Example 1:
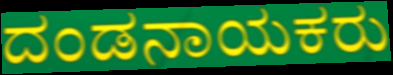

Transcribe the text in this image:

ದಂಡನಾಯಕರು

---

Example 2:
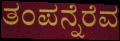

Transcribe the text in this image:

ತಂಪನ್ನೆರೆವ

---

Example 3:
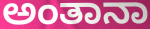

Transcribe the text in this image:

ಅಂತಾನಾ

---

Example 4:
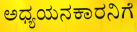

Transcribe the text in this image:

ಅಧ್ಯಯನಕಾರನಿಗೆ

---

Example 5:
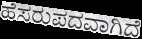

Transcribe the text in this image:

ಹೆಸರುಪದವಾಗಿದೆ